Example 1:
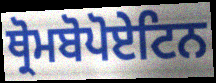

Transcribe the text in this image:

ਥ੍ਰੋਮਬੋਪੋਏਟਿਨ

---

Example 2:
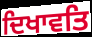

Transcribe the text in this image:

ਦਿਖਾਵਤਿ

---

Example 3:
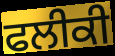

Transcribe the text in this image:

ਫਲੀਕੀ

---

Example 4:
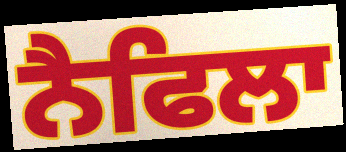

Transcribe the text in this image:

ਨੈਫਿਲਾ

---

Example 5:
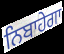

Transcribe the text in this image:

ਨਿਬਾਹੇਗਾ